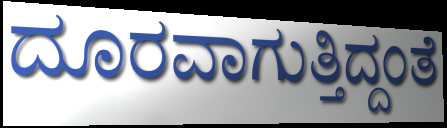
ದೂರವಾಗುತ್ತಿದ್ದಂತೆ